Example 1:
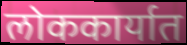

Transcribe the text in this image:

लोककार्यात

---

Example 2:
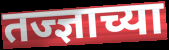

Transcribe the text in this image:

तज्ज्ञाच्या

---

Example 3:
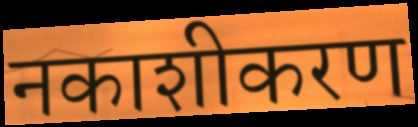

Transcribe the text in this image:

नकाशीकरण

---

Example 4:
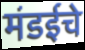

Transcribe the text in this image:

मंडईचे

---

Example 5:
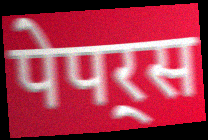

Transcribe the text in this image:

पेपर्स